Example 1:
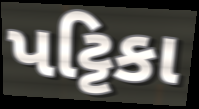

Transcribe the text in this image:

પટ્ટિકા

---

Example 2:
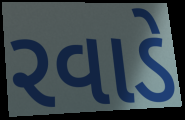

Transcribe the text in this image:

રવાડે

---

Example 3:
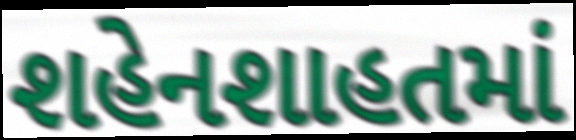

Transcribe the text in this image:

શહેનશાહતમાં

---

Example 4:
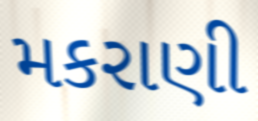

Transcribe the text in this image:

મકરાણી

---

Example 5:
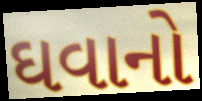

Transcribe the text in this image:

ઘવાનો